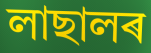
লাছালৰ